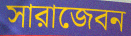
সারাজেবন